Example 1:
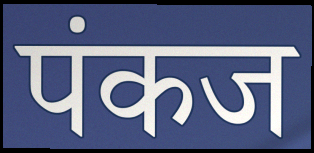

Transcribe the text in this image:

पंकज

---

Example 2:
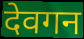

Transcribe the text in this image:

देवगन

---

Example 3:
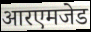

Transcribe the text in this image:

आरएमजेड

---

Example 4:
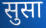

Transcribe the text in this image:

सुसा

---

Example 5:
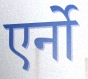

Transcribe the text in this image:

एर्नो